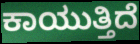
ಕಾಯುತ್ತಿದೆ